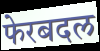
फेरबदल